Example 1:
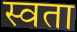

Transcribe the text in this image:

स्वता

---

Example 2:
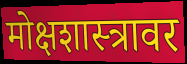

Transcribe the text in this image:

मोक्षशास्त्रावर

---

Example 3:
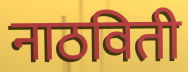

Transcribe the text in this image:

नाठविती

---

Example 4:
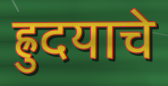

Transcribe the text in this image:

ह्रुदयाचे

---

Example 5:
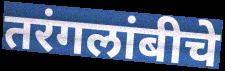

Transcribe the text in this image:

तरंगलांबीचे